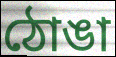
ঠোঙা